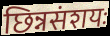
छिन्नसंशयः